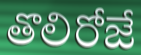
తొలిరోజే